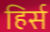
हिर्स